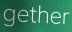
gether